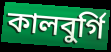
কালবুর্গি